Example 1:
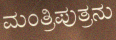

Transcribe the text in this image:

ಮಂತ್ರಿಪುತ್ರನು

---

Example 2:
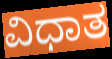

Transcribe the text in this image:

ವಿಧಾತ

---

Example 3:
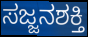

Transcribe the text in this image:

ಸಜ್ಜನಶಕ್ತಿ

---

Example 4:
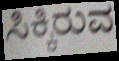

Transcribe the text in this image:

ಸಿಕ್ಕಿರುವ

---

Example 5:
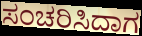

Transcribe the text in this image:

ಸಂಚರಿಸಿದಾಗ